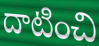
దాటించి